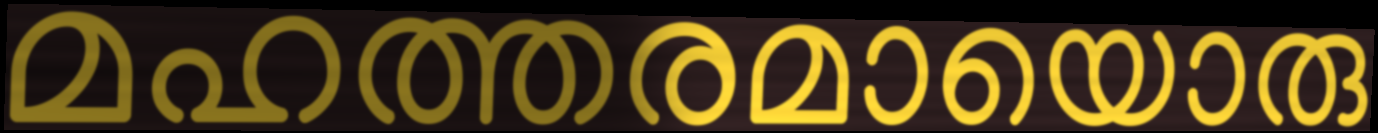
മഹത്തരമായൊരു